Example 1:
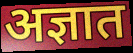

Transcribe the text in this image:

अज्ञात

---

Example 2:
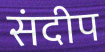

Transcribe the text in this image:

संदीप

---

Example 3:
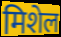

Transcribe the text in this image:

मिशेल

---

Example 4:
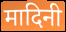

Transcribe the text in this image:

मादिनी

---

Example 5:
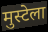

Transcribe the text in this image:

मुस्टेला